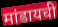
मांडायची